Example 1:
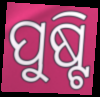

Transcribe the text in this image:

ପୁଷ୍ଟି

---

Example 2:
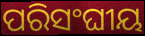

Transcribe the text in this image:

ପରିସଂଘୀୟ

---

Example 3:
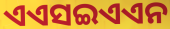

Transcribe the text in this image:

ଏଏସଇଏଏନ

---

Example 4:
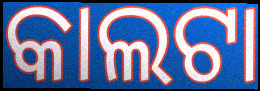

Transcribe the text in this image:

କାଲଟା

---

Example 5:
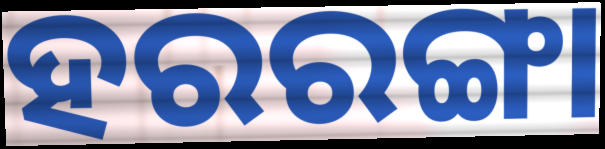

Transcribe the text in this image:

ହରରଙ୍ଗା